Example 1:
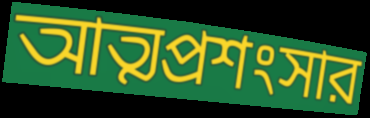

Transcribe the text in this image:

আত্মপ্রশংসার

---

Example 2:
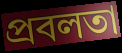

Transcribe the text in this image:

প্রবলতা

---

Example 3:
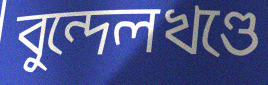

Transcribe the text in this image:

বুন্দেলখণ্ডে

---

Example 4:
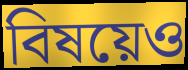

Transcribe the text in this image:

বিষয়েও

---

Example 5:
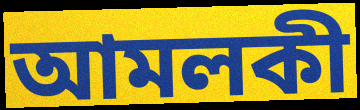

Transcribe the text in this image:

আমলকী